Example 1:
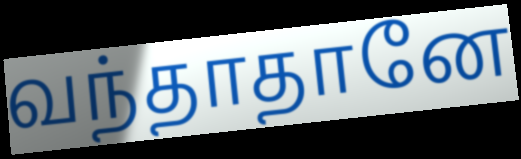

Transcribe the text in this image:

வந்தாதானே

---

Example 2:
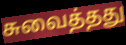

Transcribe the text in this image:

சுவைத்தது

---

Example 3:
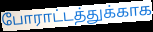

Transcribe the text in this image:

போராட்டத்துக்காக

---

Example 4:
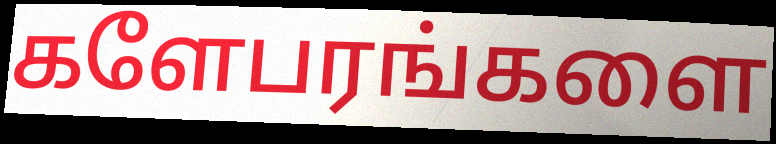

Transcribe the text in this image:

களேபரங்களை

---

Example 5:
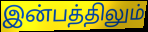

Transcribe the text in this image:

இன்பத்திலும்